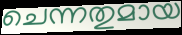
ചെന്നതുമായ